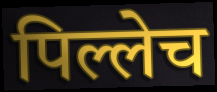
पिल्लेच